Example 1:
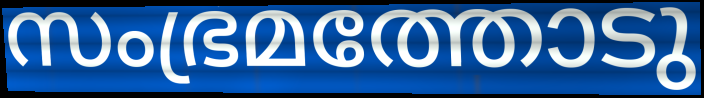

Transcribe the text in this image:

സംഭ്രമത്തോടു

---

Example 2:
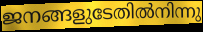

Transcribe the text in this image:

ജനങ്ങളുടേതിൽനിന്നു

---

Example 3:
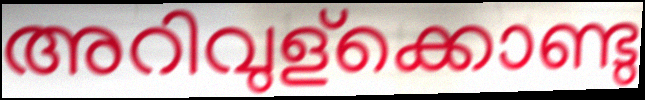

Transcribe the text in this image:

അറിവുള്ക്കൊണ്ടു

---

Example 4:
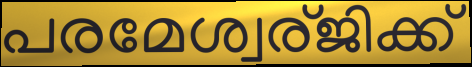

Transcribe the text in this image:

പരമേശ്വര്ജിക്ക്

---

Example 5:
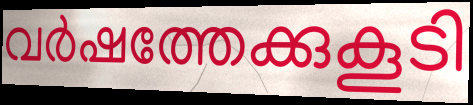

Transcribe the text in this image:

വർഷത്തേക്കുകൂടി